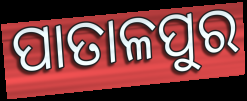
ପାତାଳପୁର